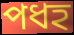
পধহ